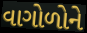
વાગોળોને